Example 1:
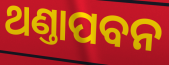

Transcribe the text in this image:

ଥଣ୍ତାପବନ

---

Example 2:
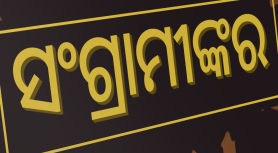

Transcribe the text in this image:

ସଂଗ୍ରାମୀଙ୍କର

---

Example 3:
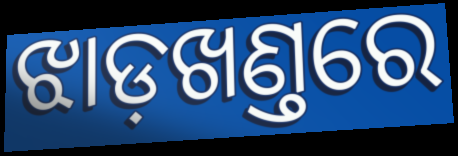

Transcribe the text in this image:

ଝାଡ଼ଖଣ୍ତରେ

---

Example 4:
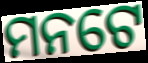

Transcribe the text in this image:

ମନଟେ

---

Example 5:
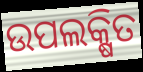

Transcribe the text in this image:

ଉପଲକ୍ଷିତ